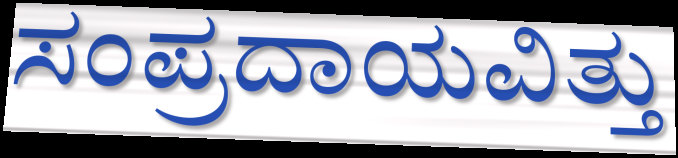
ಸಂಪ್ರದಾಯವಿತ್ತು